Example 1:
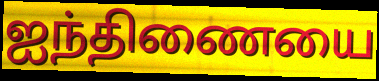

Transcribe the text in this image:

ஐந்திணையை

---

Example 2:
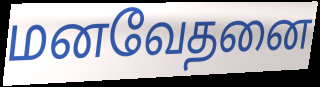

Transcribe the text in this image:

மனவேதனை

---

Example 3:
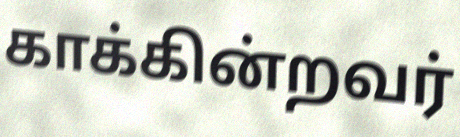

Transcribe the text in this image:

காக்கின்றவர்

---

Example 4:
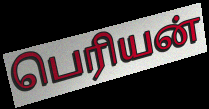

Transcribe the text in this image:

பெரியன்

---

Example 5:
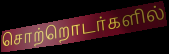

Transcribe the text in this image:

சொற்றொடர்களில்